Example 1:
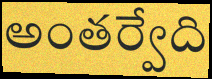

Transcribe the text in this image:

అంతర్వేది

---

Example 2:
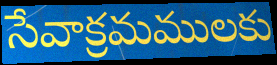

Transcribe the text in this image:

సేవాక్రమములకు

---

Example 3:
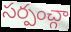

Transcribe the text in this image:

సర్పంచ్గా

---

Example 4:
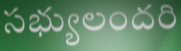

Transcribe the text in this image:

సభ్యులందరి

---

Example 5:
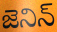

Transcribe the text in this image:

జెనిన్